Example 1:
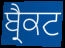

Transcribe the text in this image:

ਬ੍ਰੈਕਟ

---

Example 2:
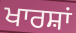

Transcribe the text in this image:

ਖਾਰਸ਼ਾਂ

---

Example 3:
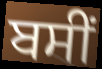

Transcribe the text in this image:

ਬਸੀਂ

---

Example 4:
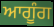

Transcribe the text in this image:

ਆਗੂੰਗ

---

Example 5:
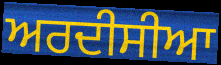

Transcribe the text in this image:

ਅਰਦੀਸੀਆ